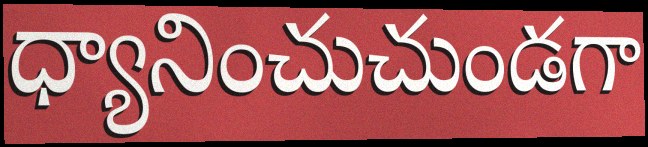
ధ్యానించుచుండగా